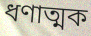
ধণাত্মক